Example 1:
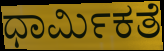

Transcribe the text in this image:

ಧಾರ್ಮಿಕತೆ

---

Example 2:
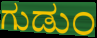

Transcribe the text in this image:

ಗುಡುಂ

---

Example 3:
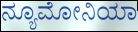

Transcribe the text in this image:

ನ್ಯೂಮೋನಿಯಾ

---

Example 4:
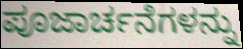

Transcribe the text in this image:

ಪೂಜಾರ್ಚನೆಗಳನ್ನು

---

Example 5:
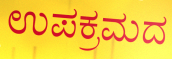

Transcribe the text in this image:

ಉಪಕ್ರಮದ